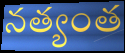
నత్యంత